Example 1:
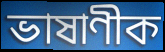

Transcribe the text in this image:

ভাষাণীক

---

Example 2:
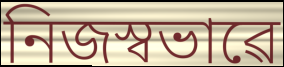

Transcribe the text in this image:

নিজস্বভাৱে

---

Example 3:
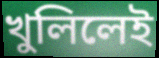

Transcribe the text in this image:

খুলিলেই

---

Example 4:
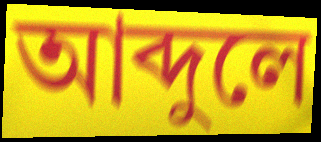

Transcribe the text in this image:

আব্দুলে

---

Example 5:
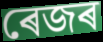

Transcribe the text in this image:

ৰেজৰ